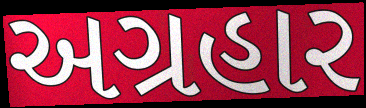
અગ્રહાર